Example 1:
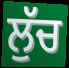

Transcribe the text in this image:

ਲੁੱਚ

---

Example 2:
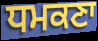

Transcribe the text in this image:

ਧਮਕਣਾ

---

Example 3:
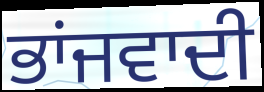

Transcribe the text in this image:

ਭਾਂਜਵਾਦੀ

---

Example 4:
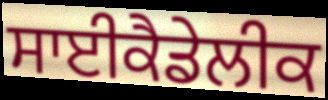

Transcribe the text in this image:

ਸਾਈਕੈਡੇਲੀਕ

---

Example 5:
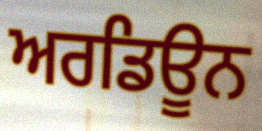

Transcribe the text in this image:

ਅਰਡਿਊਨ